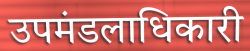
उपमंडलाधिकारी